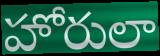
హోరులా